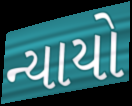
ન્યાયો